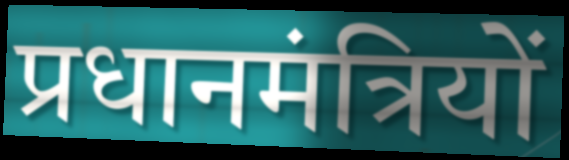
प्रधानमंत्रियों